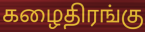
கழைதிரங்கு